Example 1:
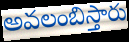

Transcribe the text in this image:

అవలంబిస్తారు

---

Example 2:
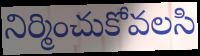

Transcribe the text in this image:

నిర్మించుకోవలసి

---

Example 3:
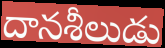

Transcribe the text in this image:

దానశీలుడు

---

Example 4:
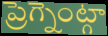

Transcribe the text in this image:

ప్రెగ్నెంట్గా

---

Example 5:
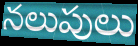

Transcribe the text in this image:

నలుపులు